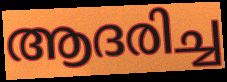
ആദരിച്ച